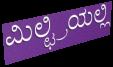
ಮಿಲ್ಟ್ರಿಯಲ್ಲಿ